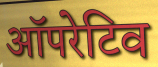
ऑपरेटिव